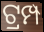
ଟ୍ରମ୍ପ